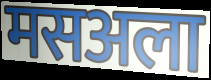
मसअला